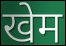
खेम